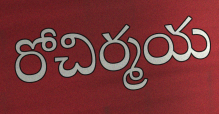
రోచిర్మయ